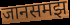
जानसमझ